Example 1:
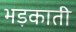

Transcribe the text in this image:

भड़काती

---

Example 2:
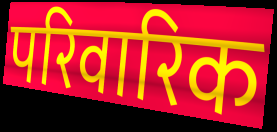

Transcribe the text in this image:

परिवारिक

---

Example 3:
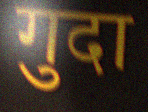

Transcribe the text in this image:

गुदा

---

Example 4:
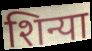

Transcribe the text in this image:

शिन्या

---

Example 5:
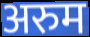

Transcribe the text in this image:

अरुम